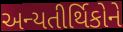
અન્યતીર્થિકોને